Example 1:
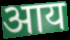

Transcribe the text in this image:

आय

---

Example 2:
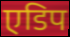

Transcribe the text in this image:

एडिप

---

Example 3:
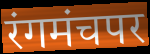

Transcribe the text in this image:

रंगमंचपर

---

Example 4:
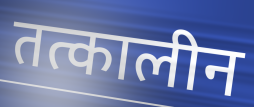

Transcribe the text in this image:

तत्कालीन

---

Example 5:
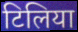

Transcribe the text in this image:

टिलिया